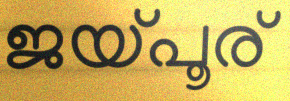
ജയ്പൂര്